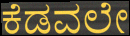
ಕೆಡವಲೇ